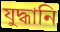
যুদ্ধানি